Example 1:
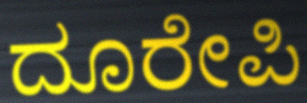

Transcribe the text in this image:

ದೂರೇಪಿ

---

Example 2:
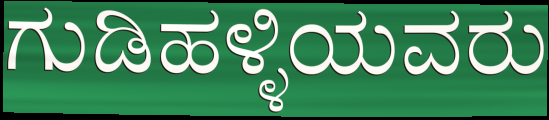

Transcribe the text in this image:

ಗುಡಿಹಳ್ಳಿಯವರು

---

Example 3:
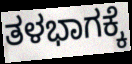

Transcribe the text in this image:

ತಳಭಾಗಕ್ಕೆ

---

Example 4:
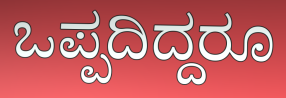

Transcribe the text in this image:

ಒಪ್ಪದಿದ್ದರೂ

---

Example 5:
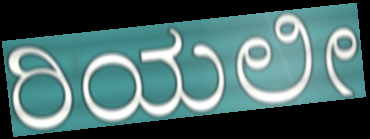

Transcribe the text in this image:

ರಿಯಲೀ